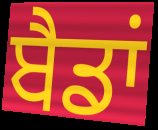
ਬੈਡਾਂ